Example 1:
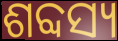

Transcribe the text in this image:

ଶବ୍ଦସ୍ଯ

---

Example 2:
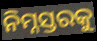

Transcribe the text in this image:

ନିମ୍ନସ୍ତରକୁ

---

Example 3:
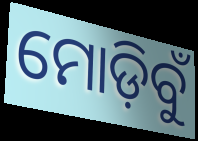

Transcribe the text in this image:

ମୋଡ଼ିବୁଁ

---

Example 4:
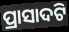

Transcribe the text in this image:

ପ୍ରାସାଦଟି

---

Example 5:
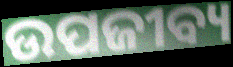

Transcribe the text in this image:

ଉପଜୀବ୍ୟ